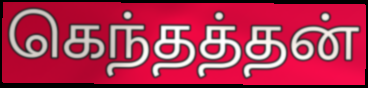
கெந்தத்தன்